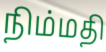
நிம்மதி